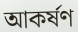
আকৰ্ষণ